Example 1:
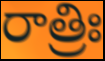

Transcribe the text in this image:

రాత్రిః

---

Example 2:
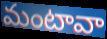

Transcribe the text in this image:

మంటావా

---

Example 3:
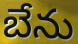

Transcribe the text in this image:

బేను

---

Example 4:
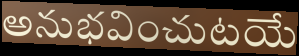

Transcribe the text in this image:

అనుభవించుటయే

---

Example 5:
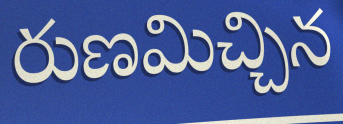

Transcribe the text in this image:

రుణమిచ్చిన